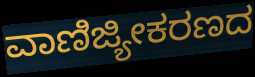
ವಾಣಿಜ್ಯೀಕರಣದ